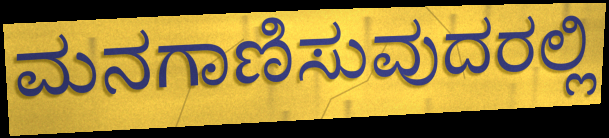
ಮನಗಾಣಿಸುವುದರಲ್ಲಿ